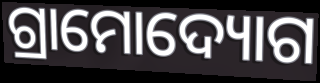
ଗ୍ରାମୋଦ୍ୟୋଗ